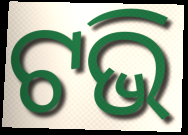
ଟଭି